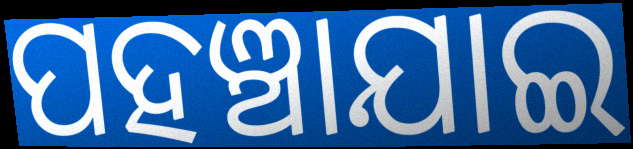
ପହଞ୍ଚାଯାଇ